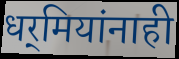
धर्मियांनाही